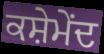
ਕਸ਼ੇਮੇਂਦ